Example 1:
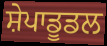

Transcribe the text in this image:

ਸ਼ੇਪਾਡੂਡਲ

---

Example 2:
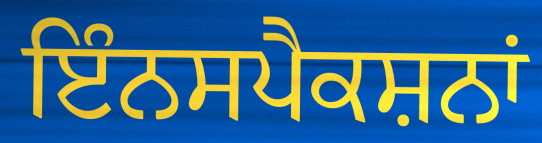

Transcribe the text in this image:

ਇੰਨਸਪੈਕਸ਼ਨਾਂ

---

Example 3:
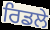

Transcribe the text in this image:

ਰਿਡਲੇ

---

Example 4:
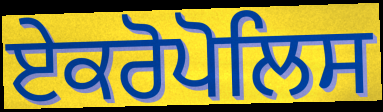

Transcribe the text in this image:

ਏਕਰੋਪੋਲਿਸ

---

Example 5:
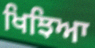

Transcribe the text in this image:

ਖਿਝਿਆ